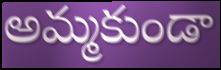
అమ్మకుండా